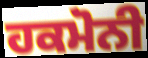
ਹਕਮੋਨੀ